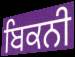
ਬਿਕਨੀ